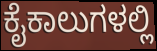
ಕೈಕಾಲುಗಳಲ್ಲಿ